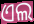
ଏଲ